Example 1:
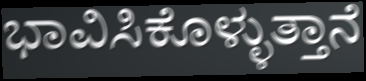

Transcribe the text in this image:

ಭಾವಿಸಿಕೊಳ್ಳುತ್ತಾನೆ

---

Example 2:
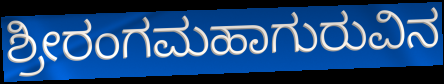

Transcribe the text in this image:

ಶ್ರೀರಂಗಮಹಾಗುರುವಿನ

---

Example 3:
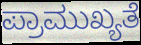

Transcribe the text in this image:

ಪ್ರಾಮುಖ್ಯತೆ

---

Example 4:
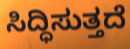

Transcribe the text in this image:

ಸಿದ್ಧಿಸುತ್ತದೆ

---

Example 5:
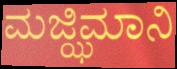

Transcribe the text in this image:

ಮಜ್ಝಿಮಾನಿ